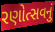
રણોત્સવનું